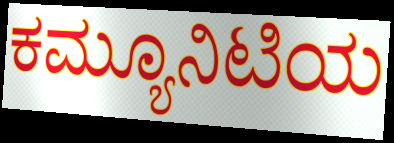
ಕಮ್ಯೂನಿಟಿಯ